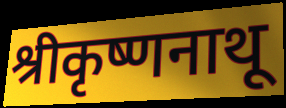
श्रीकृष्णनाथू